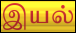
இயல்